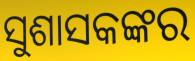
ସୁଶାସକଙ୍କର